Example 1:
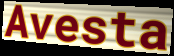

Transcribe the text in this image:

Avesta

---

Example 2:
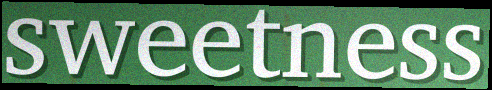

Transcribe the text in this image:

sweetness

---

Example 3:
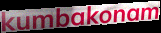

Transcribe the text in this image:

kumbakonam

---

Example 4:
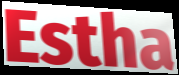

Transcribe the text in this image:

Estha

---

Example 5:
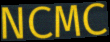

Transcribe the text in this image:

NCMC